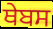
ਥੇਬਸ